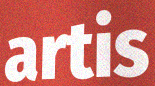
artis